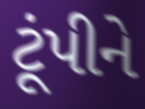
ટૂંપીને